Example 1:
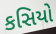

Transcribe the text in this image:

કસિયો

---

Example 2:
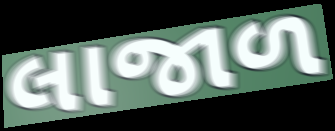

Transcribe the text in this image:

લાજાળ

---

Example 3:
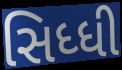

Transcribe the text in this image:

સિધ્ધી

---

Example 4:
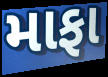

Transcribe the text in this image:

માફા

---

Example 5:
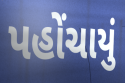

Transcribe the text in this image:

પહોંચાયું